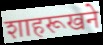
शाहरूखने